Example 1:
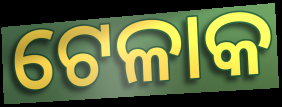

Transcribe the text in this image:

ଟେଳାକ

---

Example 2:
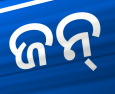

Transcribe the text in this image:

ଜନ୍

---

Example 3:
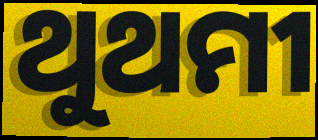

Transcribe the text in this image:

ଥୁଥମୀ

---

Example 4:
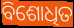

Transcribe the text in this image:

ବିଶୋଧିତ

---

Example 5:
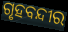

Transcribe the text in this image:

ଗୃହବନ୍ଦୀର